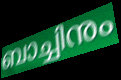
ബാച്ചിനും